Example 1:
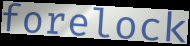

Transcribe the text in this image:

forelock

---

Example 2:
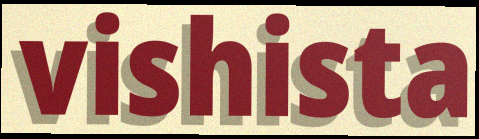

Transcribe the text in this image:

vishista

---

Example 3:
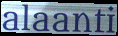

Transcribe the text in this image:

alaanti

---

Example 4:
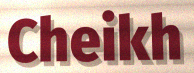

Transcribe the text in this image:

Cheikh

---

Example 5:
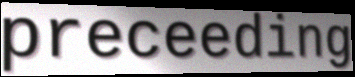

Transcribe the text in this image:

preceeding